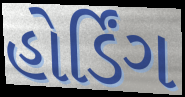
હોર્ડિંગ